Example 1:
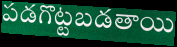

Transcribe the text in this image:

పడగొట్టబడతాయి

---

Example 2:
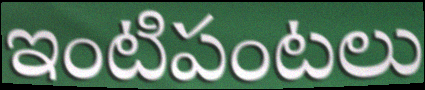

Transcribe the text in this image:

ఇంటిపంటలు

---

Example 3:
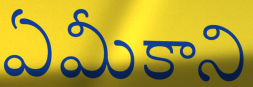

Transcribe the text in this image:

ఏమీకాని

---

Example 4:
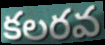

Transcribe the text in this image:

కలరవ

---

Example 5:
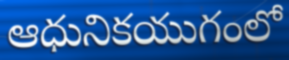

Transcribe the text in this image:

ఆధునికయుగంలో